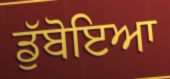
ਡੁੱਬੋਇਆ